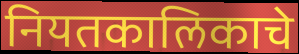
नियतकालिकाचे